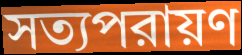
সত্যপরায়ণ